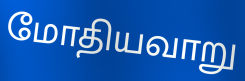
மோதியவாறு